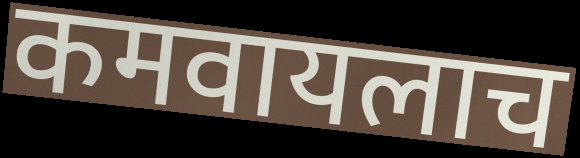
कमवायलाच